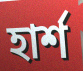
হার্শ